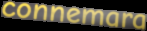
connemara